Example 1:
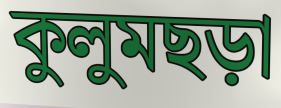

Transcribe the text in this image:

কুলুমছড়া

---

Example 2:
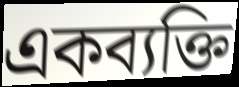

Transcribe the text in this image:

একব্যক্তি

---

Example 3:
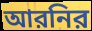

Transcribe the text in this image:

আরনির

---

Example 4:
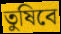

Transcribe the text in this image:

তুষিবে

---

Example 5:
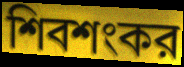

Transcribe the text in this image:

শিবশংকর